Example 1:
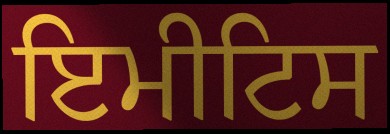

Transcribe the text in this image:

ਇਮੀਟਿਸ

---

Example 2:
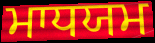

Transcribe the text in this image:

ਮਾਧਯਮ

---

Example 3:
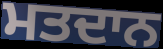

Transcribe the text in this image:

ਮਤਦਾਨ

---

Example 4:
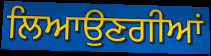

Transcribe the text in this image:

ਲਿਆਉਣਗੀਆਂ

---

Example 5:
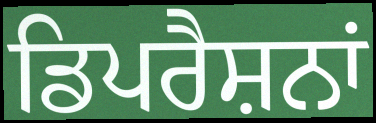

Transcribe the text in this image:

ਡਿਪਰੈਸ਼ਨਾਂ